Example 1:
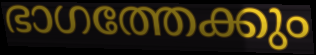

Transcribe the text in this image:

ഭാഗത്തേക്കും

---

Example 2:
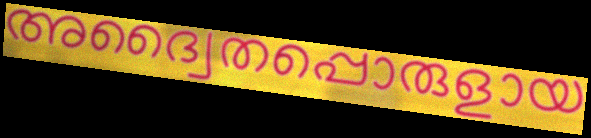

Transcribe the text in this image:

അദ്വൈതപ്പൊരുളായ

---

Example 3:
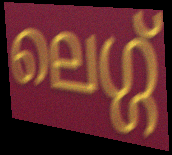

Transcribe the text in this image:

ലെഗ്ഗ്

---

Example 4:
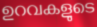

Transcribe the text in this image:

ഉറവകളുടെ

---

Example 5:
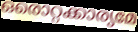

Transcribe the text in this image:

ഒരൊറ്റക്കാര്യമേ